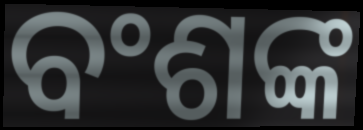
ବଂଶଙ୍କ